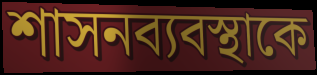
শাসনব্যবস্থাকে